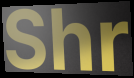
Shr